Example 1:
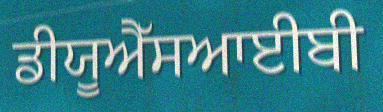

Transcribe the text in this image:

ਡੀਯੂਐੱਸਆਈਬੀ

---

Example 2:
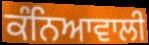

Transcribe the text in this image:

ਕੰਨਿਆਵਾਲੀ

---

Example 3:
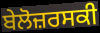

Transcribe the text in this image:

ਬੇਲੋਜ਼ਰਸਕੀ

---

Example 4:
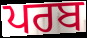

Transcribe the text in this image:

ਪਰਬ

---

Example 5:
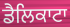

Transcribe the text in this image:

ਡੈਲਿਕਾਟਾ